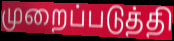
முறைப்படுத்தி